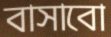
বাসাবো